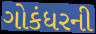
ગોકંધરની